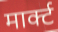
मार्क्ट